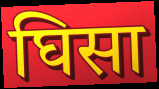
घिसा